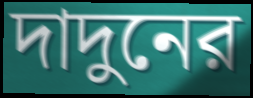
দাদুনের